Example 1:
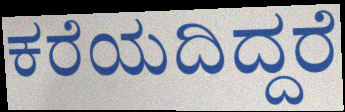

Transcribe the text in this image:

ಕರೆಯದಿದ್ದರೆ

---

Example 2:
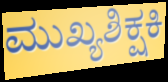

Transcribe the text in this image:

ಮುಖ್ಯಶಿಕ್ಷಕಿ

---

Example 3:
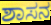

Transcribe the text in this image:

ಶಾಸನ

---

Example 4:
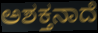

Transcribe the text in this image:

ಅಶಕ್ತನಾದೆ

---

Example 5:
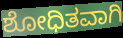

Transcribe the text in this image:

ಶೋಧಿತವಾಗಿ